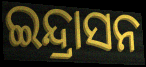
ଇନ୍ଦ୍ରାସନ